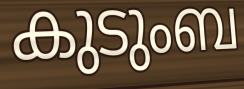
കുടുംബ